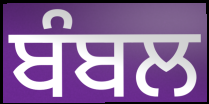
ਬੰਬਲ